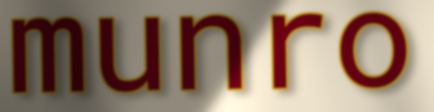
munro